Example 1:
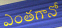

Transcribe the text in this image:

ఎంతగానో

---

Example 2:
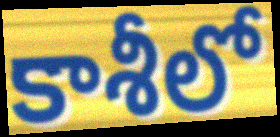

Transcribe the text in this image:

కాశీలో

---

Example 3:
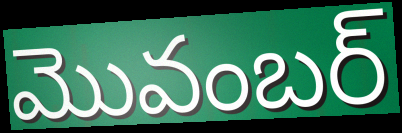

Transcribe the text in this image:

మొవంబర్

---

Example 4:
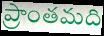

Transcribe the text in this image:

ప్రాంతమది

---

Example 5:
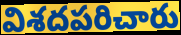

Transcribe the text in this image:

విశదపరిచారు